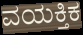
ವಯಕ್ತಿಕ